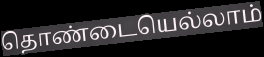
தொண்டையெல்லாம்